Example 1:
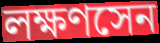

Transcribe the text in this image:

লক্ষণসেন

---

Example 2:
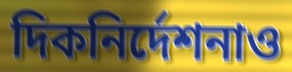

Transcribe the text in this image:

দিকনির্দেশনাও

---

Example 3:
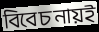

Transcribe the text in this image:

বিবেচনায়ই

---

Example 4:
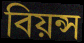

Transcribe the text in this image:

বিয়ন্স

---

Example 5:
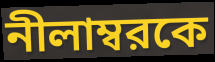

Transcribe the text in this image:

নীলাম্বরকে